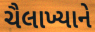
ચૈલાખ્યાને